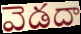
వెడదా